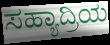
ಸಹ್ಯಾದ್ರಿಯ